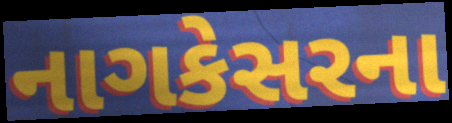
નાગકેસરના